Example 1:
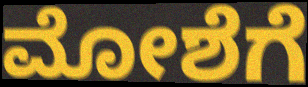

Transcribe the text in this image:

ಮೋಶೆಗೆ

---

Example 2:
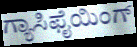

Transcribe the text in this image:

ಗ್ಯಾಸಿಫೈಯಿಂಗ್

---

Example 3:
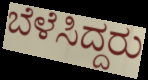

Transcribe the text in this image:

ಬೆಳೆಸಿದ್ದರು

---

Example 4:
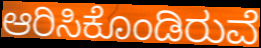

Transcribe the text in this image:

ಆರಿಸಿಕೊಂಡಿರುವೆ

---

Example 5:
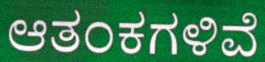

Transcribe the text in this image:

ಆತಂಕಗಳಿವೆ